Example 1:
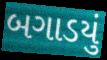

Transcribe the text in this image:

બગાડયું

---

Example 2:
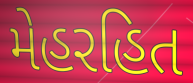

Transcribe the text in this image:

મેહરહિત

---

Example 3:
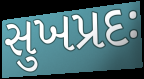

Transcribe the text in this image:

સુખપ્રદઃ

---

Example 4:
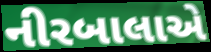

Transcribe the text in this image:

નીરબાલાએ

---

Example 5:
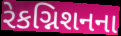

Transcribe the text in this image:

રેકગ્નિશનના